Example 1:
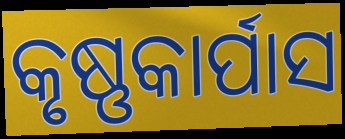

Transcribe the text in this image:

କୃଷ୍ଣକାର୍ପାସ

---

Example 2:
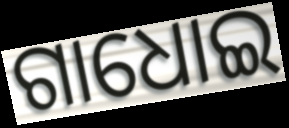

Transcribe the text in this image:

ଗାଧୋଇ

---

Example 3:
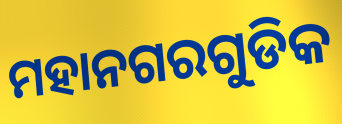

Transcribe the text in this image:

ମହାନଗରଗୁଡିକ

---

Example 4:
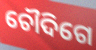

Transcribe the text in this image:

ଚୌଦିଗେ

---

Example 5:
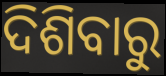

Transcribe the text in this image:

ଦିଶିବାରୁ